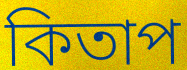
কিতাপ